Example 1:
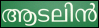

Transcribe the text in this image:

ആടലിൻ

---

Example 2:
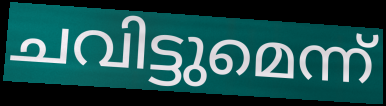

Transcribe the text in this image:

ചവിട്ടുമെന്ന്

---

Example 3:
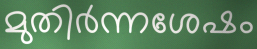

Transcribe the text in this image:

മുതിർന്നശേഷം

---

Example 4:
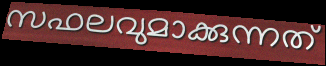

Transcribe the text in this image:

സഫലവുമാക്കുന്നത്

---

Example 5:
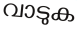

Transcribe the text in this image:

വാടുക